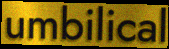
umbilical